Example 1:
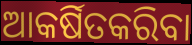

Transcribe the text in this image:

ଆକର୍ଷିତକରିବା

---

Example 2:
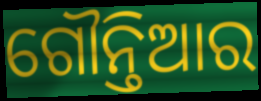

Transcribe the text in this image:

ଗୌନ୍ତିଆର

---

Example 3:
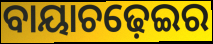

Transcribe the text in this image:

ବାୟାଚଢ଼େଇର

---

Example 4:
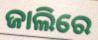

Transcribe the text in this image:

ଜାଲିରେ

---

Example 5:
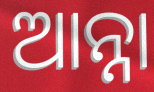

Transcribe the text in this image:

ଆନ୍ନା